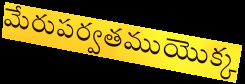
మేరుపర్వతముయొక్క